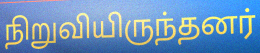
நிறுவியிருந்தனர்